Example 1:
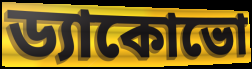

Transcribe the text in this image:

ড্যাকোভো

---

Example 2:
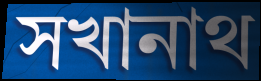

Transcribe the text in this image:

সখানাথ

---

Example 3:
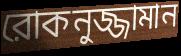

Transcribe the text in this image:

রোকনুজ্জামান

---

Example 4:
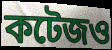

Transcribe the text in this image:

কটেজও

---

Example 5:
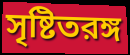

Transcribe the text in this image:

সৃষ্টিতরঙ্গ